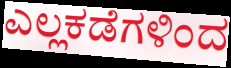
ಎಲ್ಲಕಡೆಗಳಿಂದ